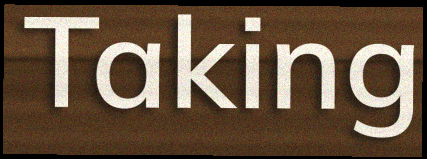
Taking